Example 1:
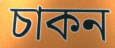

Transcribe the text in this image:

চাকন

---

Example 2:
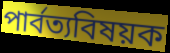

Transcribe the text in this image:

পার্বত্যবিষয়ক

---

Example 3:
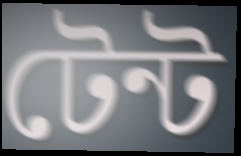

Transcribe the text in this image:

টেন্ট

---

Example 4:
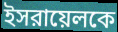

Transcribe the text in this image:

ইসরায়েলকে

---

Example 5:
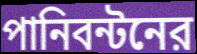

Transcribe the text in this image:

পানিবন্টনের